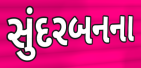
સુંદરબનના